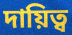
দায়িত্ব